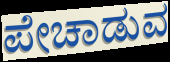
ಪೇಚಾಡುವ